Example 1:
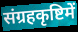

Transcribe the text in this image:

संग्रहकृष्टिमें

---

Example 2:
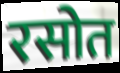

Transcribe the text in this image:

रसोत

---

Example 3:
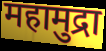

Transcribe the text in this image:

महामुद्रा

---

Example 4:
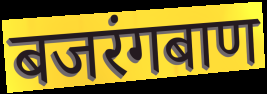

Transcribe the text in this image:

बजरंगबाण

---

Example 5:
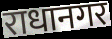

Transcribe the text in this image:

राधानगर